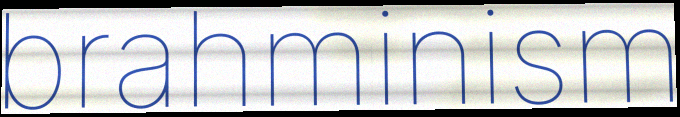
brahminism